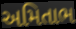
અમિતાભ